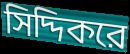
সিদ্দিকরে